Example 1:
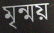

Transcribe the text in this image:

মৃন্ময়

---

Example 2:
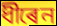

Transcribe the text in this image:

ধীৰেন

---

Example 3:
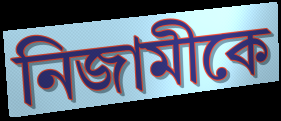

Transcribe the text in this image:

নিজামীকে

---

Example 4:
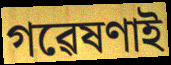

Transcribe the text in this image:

গৱেষণাই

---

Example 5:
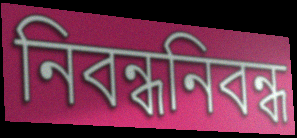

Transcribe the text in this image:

নিবন্ধনিবন্ধ